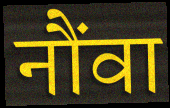
नौंवा